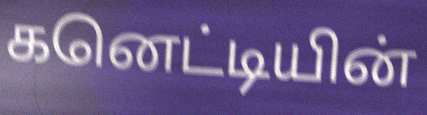
கனெட்டியின்